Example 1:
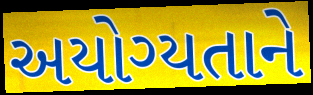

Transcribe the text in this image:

અયોગ્યતાને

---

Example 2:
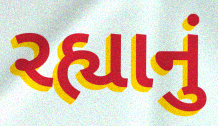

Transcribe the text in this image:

રહ્યાનું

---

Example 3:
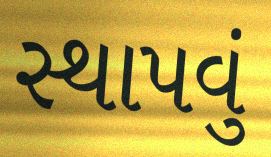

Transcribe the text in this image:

સ્થાપવું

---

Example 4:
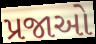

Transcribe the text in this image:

પ્રજાઓ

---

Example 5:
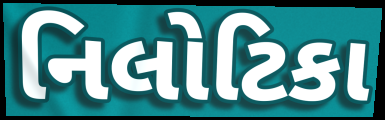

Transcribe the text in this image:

નિલોટિકા